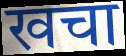
खचा